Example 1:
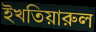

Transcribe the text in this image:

ইখতিয়ারুল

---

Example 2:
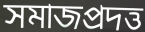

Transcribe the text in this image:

সমাজপ্রদত্ত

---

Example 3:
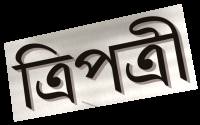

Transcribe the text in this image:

ত্রিপত্রী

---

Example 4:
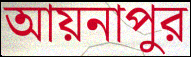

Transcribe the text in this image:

আয়নাপুর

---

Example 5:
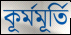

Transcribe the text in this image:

কূর্মমূর্তি